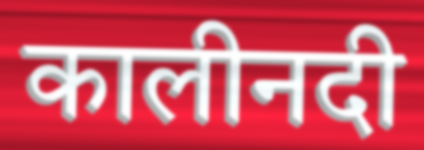
कालीनदी